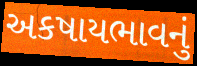
અકષાયભાવનું